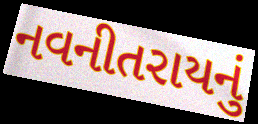
નવનીતરાયનું